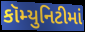
કૉમ્યુનિટીમાં